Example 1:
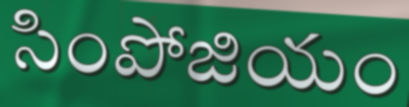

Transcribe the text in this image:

సింపోజియం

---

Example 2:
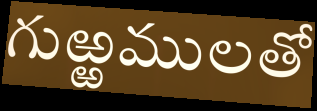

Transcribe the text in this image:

గుఱ్ఱములతో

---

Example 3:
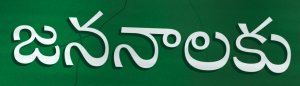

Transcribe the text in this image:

జననాలకు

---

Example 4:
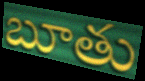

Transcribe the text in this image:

బూతు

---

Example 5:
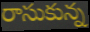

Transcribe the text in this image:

రాసుకున్న